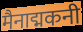
मैनाद्मकनी